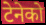
टेनेको